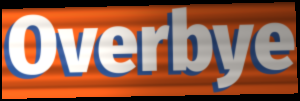
Overbye